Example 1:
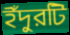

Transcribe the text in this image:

ইঁদুরটি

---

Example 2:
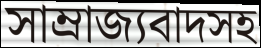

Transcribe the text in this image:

সাম্রাজ্যবাদসহ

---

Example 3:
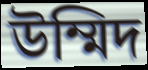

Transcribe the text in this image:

উম্মিদ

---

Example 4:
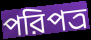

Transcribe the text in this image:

পরিপত্র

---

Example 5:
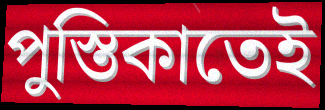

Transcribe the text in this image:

পুস্তিকাতেই